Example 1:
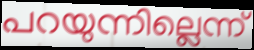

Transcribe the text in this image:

പറയുന്നില്ലെന്ന്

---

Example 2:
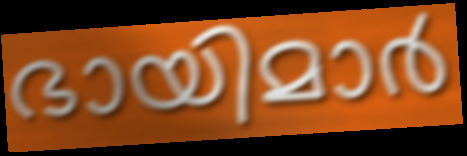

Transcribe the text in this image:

ഭായിമാർ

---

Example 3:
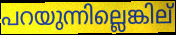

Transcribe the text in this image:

പറയുന്നില്ലെങ്കില്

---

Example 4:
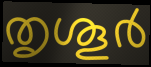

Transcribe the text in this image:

തൃശൂർ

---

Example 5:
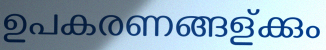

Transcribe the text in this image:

ഉപകരണങ്ങള്ക്കും